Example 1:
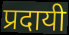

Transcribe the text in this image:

प्रदायी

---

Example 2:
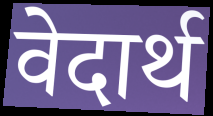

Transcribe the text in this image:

वेदार्थ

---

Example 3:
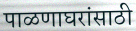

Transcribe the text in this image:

पाळणाघरांसाठी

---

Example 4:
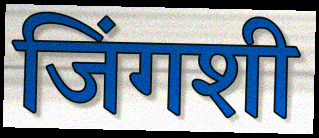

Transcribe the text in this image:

जिंगशी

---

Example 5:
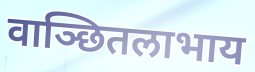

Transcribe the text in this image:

वाञ्छितलाभाय